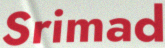
Srimad